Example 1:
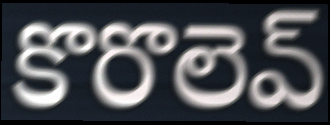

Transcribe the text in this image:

కొరొలెవ్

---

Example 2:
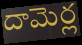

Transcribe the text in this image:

దామెర్ల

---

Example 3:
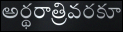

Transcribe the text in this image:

అర్థరాత్రివరకూ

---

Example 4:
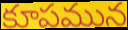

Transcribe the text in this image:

కూపమున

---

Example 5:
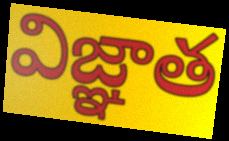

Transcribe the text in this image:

విజ్ఞాత